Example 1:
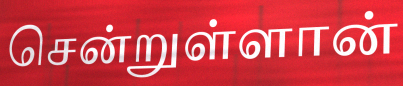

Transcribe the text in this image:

சென்றுள்ளான்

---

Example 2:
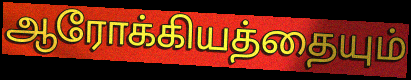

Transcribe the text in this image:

ஆரோக்கியத்தையும்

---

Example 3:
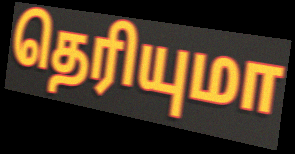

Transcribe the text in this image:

தெரியுமா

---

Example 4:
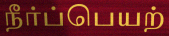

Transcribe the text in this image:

நீர்ப்பெயற்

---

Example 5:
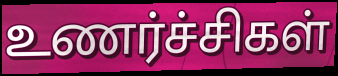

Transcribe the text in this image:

உணர்ச்சிகள்